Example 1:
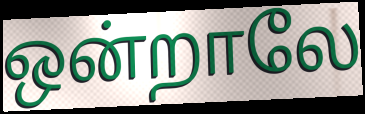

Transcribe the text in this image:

ஒன்றாலே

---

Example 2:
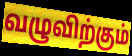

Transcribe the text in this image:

வழுவிற்கும்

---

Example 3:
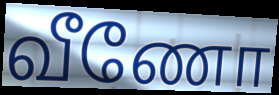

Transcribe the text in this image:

வீணோ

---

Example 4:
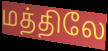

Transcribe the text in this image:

மத்திலே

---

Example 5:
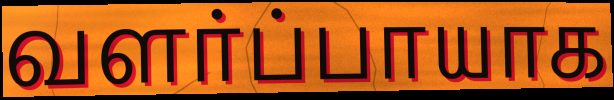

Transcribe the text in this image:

வளர்ப்பாயாக